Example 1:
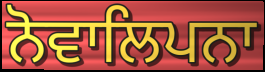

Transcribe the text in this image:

ਨੋਵਾਲਿਪਨਾ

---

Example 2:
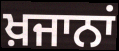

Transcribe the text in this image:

ਖ਼ਜਾਨਾਂ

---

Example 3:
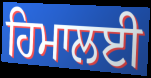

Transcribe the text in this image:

ਹਿਮਾਲਈ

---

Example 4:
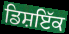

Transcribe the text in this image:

ਡਿਸ਼ਇੱਕ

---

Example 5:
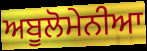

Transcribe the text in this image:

ਅਬੂਲੋਮੇਨੀਆ